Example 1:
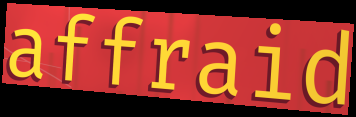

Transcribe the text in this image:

affraid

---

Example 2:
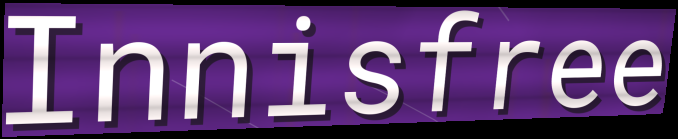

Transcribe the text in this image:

Innisfree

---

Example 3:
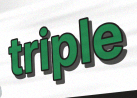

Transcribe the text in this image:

triple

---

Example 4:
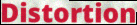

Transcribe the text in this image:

Distortion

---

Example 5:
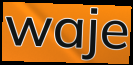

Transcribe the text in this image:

waje